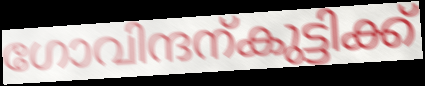
ഗോവിന്ദന്കുട്ടിക്ക്